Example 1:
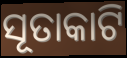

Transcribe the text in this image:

ସୂତାକାଟି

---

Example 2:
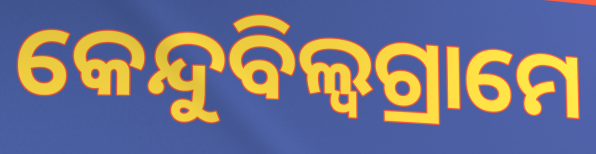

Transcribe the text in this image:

କେନ୍ଦୁବିଲ୍ଵଗ୍ରାମେ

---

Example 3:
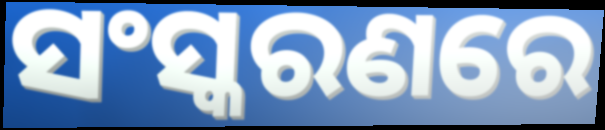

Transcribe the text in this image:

ସଂସ୍କରଣରେ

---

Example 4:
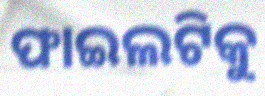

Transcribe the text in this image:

ଫାଇଲଟିକୁ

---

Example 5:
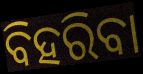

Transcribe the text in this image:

ବିହରିବା